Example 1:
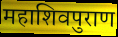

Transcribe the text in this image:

महाशिवपुराण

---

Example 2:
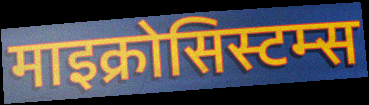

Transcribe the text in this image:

माइक्रोसिस्टम्स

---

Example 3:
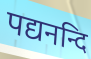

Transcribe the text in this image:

पद्यनन्दि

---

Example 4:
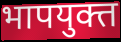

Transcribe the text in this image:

भापयुक्त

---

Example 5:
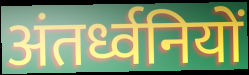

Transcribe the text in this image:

अंतर्ध्वनियों